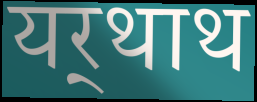
यर्थाथ